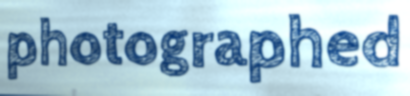
photographed